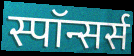
स्पॉन्सर्स